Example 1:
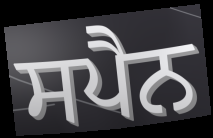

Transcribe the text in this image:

ਸਪੈਨ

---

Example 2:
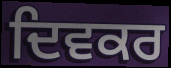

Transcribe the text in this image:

ਦਿਵਕਰ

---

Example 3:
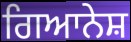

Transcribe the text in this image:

ਗਿਆਨੇਸ਼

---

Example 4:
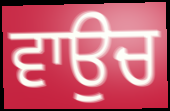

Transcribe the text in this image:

ਵਾਉਚ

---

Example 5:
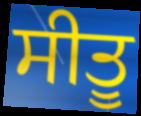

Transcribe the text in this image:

ਸੀਤੂ